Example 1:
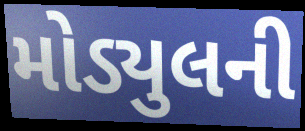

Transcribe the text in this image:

મોડ્યુલની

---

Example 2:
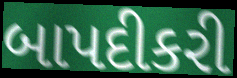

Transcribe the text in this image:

બાપદીકરી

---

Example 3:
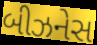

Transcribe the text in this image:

બીઝનેસ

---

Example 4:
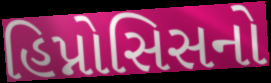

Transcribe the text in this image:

હિપ્નોસિસનો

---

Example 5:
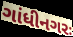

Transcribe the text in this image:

ગાંધીનગરઃ